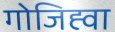
गोजिह्वा